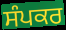
ਸੰਪਕਰ